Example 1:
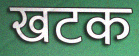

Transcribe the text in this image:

खटक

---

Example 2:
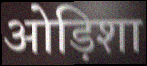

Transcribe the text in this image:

ओड़िशा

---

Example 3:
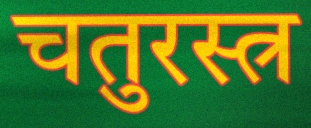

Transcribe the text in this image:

चतुरस्त्र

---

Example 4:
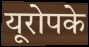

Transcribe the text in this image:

यूरोपके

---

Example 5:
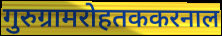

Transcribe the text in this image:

गुरुग्रामरोहतककरनाल